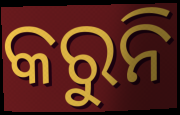
କରୁନି